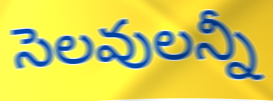
సెలవులన్నీ